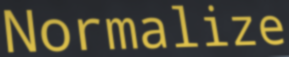
Normalize